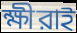
ক্ষীরাই